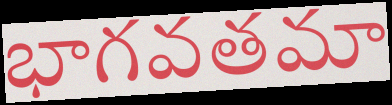
భాగవతమా